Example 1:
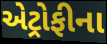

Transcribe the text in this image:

એટ્રોફીના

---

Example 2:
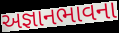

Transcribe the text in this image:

અજ્ઞાનભાવના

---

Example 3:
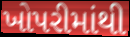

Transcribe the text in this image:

ખોપરીમાંથી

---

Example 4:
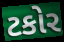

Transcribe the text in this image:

ટકોર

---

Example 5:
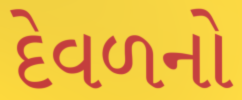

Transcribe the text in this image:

દેવળનો